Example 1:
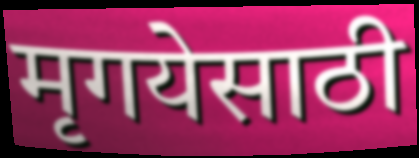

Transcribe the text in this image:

मृगयेसाठी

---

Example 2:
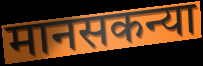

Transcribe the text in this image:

मानसकन्या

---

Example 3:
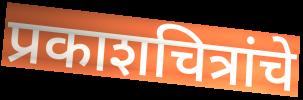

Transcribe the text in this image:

प्रकाशचित्रांचे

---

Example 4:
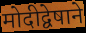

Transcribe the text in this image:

मोदीद्वेषाने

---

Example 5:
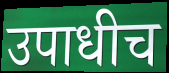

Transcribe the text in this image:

उपाधीच